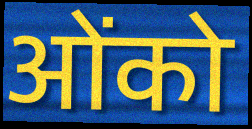
ओंको